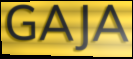
GAJA